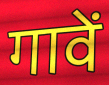
गावें